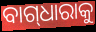
ବାଗ୍‌ଧାରାକୁ